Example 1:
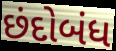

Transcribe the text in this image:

છંદોબંધ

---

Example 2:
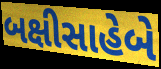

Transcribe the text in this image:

બક્ષીસાહેબે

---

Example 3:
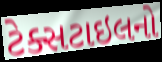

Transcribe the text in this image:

ટેક્સટાઇલનો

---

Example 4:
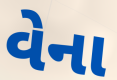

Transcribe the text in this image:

વેના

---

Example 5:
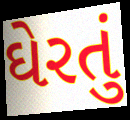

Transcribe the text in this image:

ઘેરતું